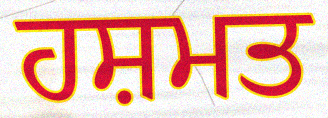
ਹਸ਼ਮਤ